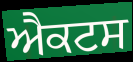
ਐਕਟਸ